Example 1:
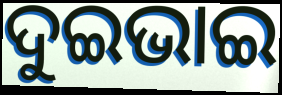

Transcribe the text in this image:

ଦୁଇଭାଇ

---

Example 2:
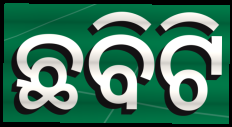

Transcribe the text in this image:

ଛବିଟି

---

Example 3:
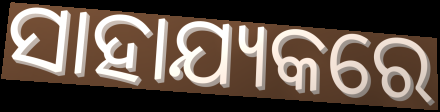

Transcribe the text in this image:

ସାହାଯ୍ୟକରେ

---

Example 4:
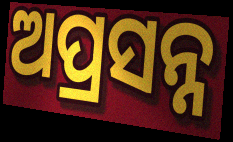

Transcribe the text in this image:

ଅପ୍ରସନ୍ନ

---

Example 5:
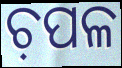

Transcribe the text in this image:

ଚ଼ପଳ